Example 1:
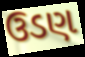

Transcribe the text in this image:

ઉડણ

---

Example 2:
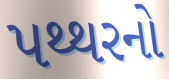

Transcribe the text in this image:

પથ્થરનો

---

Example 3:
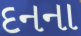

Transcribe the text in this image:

દનના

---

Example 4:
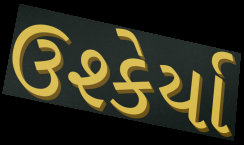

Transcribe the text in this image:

ઉશ્કેર્યા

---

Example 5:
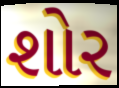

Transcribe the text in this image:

શોર